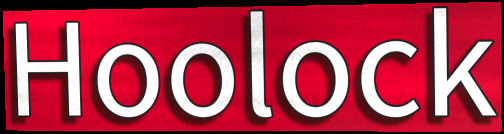
Hoolock